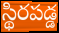
స్థిరపడ్డ